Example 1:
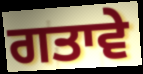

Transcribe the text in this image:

ਗਤਾਵੇ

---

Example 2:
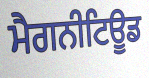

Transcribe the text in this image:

ਮੈਗਨੀਟਿਊਡ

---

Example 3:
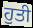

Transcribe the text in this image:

ਹੁਤੀ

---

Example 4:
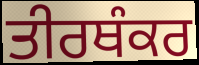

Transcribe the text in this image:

ਤੀਰਥੰਕਰ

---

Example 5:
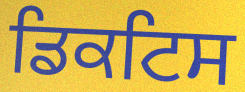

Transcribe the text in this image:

ਡਿਕਟਿਸ